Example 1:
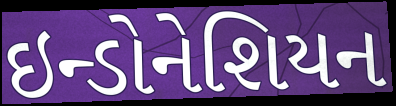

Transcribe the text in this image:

ઇન્ડોનેશિયન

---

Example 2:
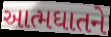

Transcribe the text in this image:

આત્મઘાતને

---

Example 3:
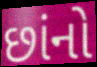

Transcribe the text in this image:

છાંનો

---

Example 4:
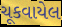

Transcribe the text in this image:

ચૂકવાયેલ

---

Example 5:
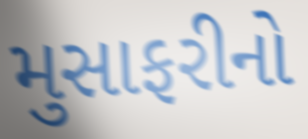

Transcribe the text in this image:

મુસાફરીનો